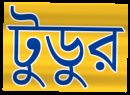
টুডুর